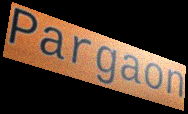
Pargaon